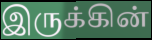
இருக்கின்